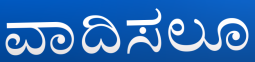
ವಾದಿಸಲೂ